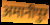
अमानीपुर